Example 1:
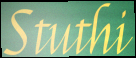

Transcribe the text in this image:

Stuthi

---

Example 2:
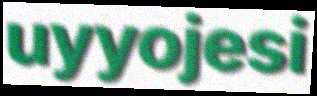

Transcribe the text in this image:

uyyojesi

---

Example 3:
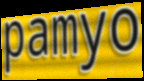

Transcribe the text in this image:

pamyo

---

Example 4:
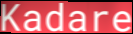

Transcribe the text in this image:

Kadare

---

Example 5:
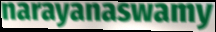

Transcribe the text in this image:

narayanaswamy